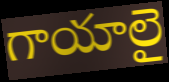
గాయాలై